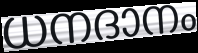
ധനദാനം